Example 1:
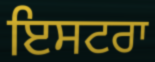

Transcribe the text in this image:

ਇਸਟਰਾ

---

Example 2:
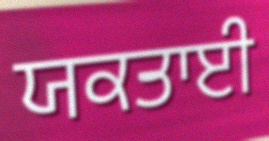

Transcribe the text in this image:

ਯਕਤਾਈ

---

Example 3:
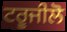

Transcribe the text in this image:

ਟਰੂਜੀਲੋ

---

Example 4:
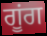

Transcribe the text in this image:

ਗੂਂਗ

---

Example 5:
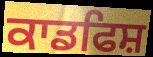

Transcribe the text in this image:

ਕਾਡਫਿਸ਼